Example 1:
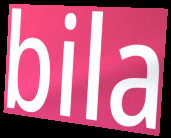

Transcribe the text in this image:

bila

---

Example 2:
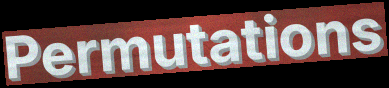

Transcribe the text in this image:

Permutations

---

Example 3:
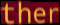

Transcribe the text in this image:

ther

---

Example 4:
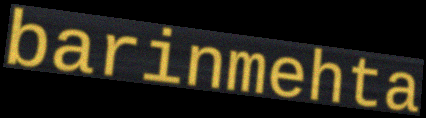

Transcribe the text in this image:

barinmehta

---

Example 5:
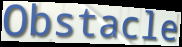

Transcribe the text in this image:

Obstacle